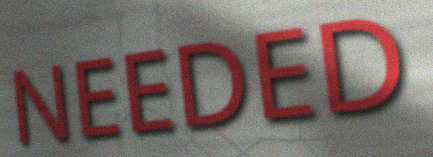
NEEDED